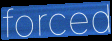
forced